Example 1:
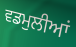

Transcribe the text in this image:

ਵਡਮੁਲੀਆਂ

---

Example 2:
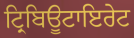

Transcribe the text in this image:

ਟ੍ਰਿਬਿਊਟਾਇਰੇਟ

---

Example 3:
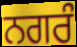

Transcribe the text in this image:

ਨਗਰੰ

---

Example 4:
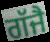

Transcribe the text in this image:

ਗੱਜੈ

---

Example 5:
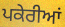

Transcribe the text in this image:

ਪਕੇਰੀਆਂ